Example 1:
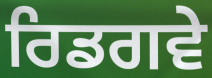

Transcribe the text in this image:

ਰਿਡਗਵੇ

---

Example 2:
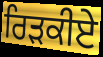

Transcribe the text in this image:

ਰਿੜਕੀਏ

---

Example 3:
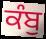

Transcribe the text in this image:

ਕੰਬੁ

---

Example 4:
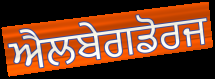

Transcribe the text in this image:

ਐਲਬੇਗਡੋਰਜ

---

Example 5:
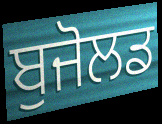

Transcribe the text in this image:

ਬੁਜੋਲਡ